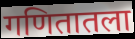
गणितातला